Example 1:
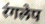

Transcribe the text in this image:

रंगलेप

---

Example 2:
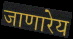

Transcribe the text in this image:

जाणारेय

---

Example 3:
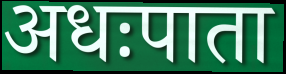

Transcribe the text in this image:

अधःपाता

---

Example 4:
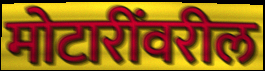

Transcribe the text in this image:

मोटारींवरील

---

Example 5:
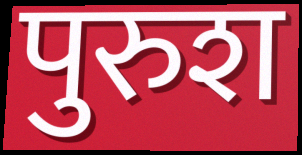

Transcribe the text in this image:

पुरुश